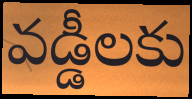
వడ్డీలకు